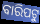
ବାରିପଟୁ